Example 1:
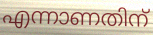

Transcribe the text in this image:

എന്നാണതിന്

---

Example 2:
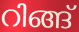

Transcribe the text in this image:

റിങ്ങ്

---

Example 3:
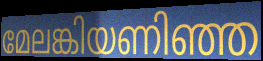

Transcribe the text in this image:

മേലങ്കിയണിഞ്ഞ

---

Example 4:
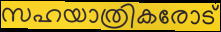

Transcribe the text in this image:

സഹയാത്രികരോട്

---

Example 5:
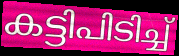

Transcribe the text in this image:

കട്ടിപിടിച്ച്